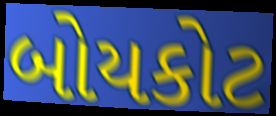
બોયકોટ